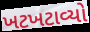
ખટખટાવ્યો